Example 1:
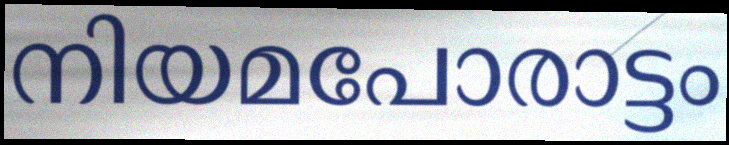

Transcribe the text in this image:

നിയമപോരാട്ടം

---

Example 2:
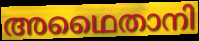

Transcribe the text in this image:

അഥൈതാനി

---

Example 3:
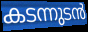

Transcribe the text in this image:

കടന്നുടൻ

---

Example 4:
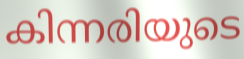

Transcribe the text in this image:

കിന്നരിയുടെ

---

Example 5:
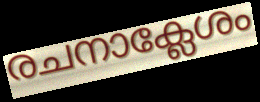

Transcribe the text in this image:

രചനാക്ലേശം